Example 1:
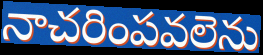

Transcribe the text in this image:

నాచరింపవలెను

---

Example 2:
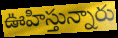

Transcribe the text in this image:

ఊహిస్తున్నారు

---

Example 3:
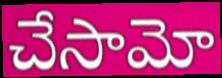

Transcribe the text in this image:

చేసామో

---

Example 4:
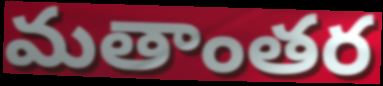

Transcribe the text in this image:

మతాంతర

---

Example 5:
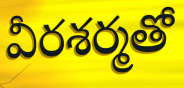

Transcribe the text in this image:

వీరశర్మతో